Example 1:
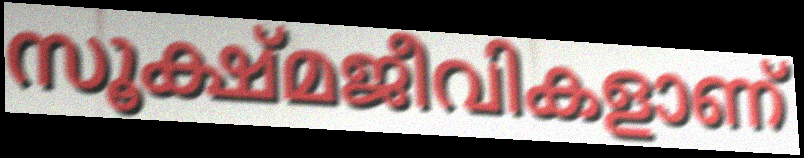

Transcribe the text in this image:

സൂക്ഷ്മജീവികളാണ്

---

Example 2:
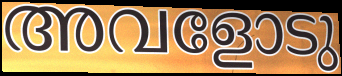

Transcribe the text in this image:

അവളോടു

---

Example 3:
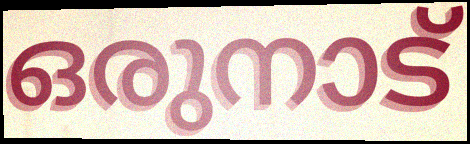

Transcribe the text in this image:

ഒരുനാട്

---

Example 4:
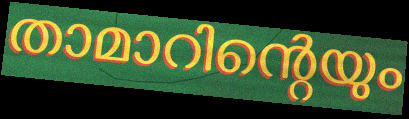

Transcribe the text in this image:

താമാറിന്റെയും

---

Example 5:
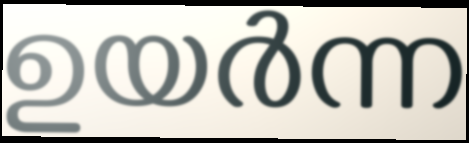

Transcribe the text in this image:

ഉയർന്ന